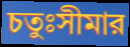
চতুঃসীমার